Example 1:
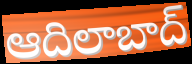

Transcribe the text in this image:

ఆదిలాబాద్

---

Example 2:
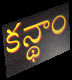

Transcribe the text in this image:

కన్థాం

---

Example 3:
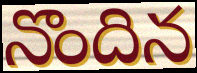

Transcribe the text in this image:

నొందిన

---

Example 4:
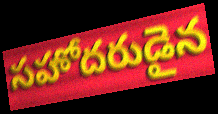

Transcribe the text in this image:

సహోదరుడైన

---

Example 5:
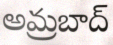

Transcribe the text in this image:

అమ్రబాద్